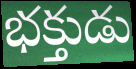
భక్తుడు